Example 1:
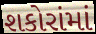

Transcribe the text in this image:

શકોરાંમાં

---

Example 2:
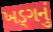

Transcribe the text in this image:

ખડ્ગનું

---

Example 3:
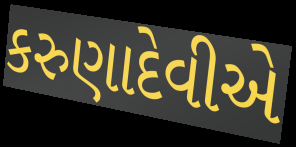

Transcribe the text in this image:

કરુણાદેવીએ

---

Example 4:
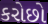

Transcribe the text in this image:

કરોછો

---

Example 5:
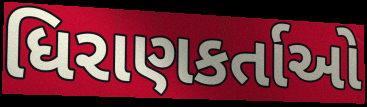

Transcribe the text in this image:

ધિરાણકર્તાઓ